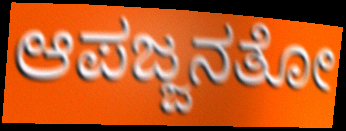
ಆಪಜ್ಜನತೋ